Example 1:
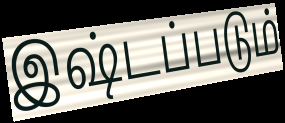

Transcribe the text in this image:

இஷ்டப்படும்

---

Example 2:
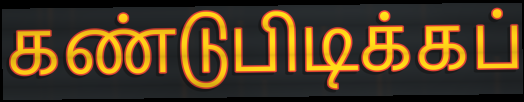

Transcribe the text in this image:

கண்டுபிடிக்கப்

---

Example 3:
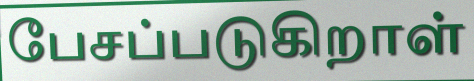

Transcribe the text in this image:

பேசப்படுகிறாள்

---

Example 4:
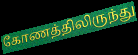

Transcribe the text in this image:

கோணத்திலிருந்து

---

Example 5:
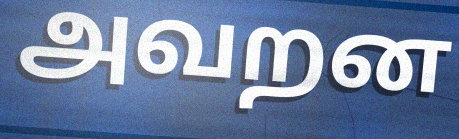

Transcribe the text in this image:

அவறன